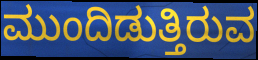
ಮುಂದಿಡುತ್ತಿರುವ